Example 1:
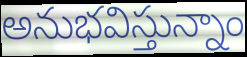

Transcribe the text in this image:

అనుభవిస్తున్నాం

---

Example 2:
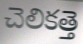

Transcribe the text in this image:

చెలికత్తె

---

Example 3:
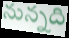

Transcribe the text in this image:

నున్నది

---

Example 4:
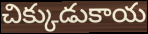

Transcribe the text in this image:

చిక్కుడుకాయ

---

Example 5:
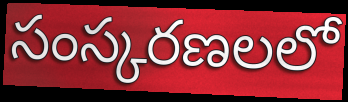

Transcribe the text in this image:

సంస్కరణలలో